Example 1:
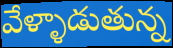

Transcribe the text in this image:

వేళ్ళాడుతున్న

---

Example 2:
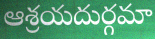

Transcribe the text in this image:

ఆశ్రయదుర్గమా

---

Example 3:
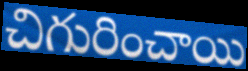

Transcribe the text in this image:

చిగురించాయి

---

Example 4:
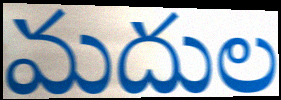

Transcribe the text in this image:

మదుల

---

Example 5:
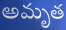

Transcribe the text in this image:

అమృత